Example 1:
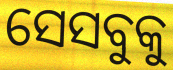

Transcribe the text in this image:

ସେସବୁକୁ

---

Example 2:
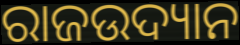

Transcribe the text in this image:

ରାଜଉଦ୍ୟାନ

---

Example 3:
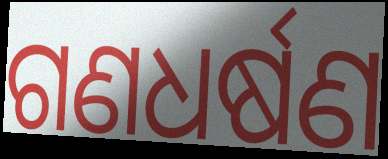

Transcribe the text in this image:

ଗଣଧର୍ଷଣ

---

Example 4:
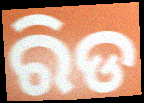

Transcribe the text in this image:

ରିଡ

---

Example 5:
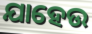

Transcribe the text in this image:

ଯାହେଉ